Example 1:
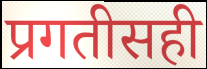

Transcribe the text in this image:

प्रगतीसही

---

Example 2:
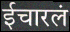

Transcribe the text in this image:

ईचारलं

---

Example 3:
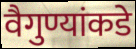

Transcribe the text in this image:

वैगुण्यांकडे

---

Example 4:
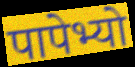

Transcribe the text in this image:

पापेभ्यो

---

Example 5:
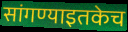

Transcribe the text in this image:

सांगण्याइतकेच